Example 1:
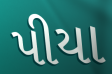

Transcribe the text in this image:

પીયા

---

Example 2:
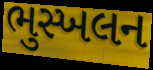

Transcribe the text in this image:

ભુસ્ખલન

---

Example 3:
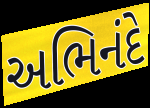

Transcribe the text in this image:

અભિનંદે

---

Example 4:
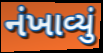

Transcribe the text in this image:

નંખાવ્યું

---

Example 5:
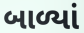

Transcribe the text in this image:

બાળ્યાં